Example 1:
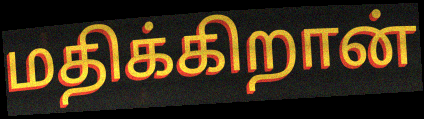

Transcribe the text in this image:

மதிக்கிறான்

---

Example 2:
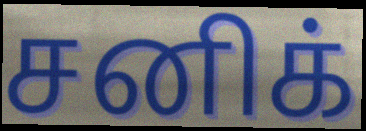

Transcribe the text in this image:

சனிக்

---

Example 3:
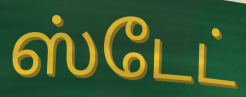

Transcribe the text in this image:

ஸ்டேட்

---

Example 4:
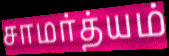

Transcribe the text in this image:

சாமர்த்யம்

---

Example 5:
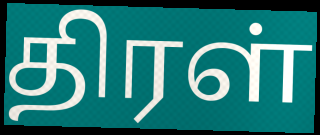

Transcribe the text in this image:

திரள்